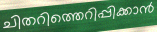
ചിതറിത്തെറിപ്പിക്കാൻ